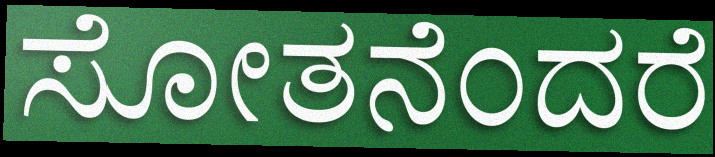
ಸೋತನೆಂದರೆ